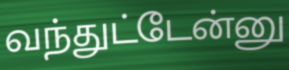
வந்துட்டேன்னு